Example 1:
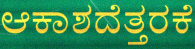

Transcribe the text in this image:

ಆಕಾಶದೆತ್ತರಕೆ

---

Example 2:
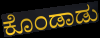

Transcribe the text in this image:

ಕೊಂಡಾಡು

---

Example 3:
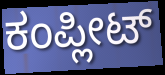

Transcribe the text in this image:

ಕಂಪ್ಲೀಟ್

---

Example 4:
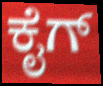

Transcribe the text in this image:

ಕೈಗ್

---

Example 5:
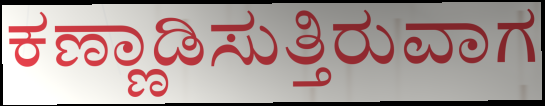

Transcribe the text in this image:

ಕಣ್ಣಾಡಿಸುತ್ತಿರುವಾಗ